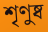
শৃণুষ্ব